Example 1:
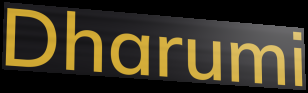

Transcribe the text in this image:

Dharumi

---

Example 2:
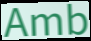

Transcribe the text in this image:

Amb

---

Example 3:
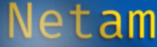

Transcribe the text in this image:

Netam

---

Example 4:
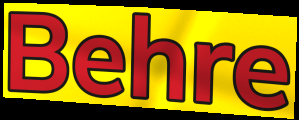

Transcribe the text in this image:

Behre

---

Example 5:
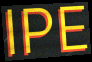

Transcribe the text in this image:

IPE